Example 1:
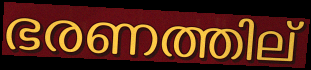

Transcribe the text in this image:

ഭരണത്തില്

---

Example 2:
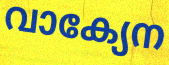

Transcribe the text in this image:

വാക്യേന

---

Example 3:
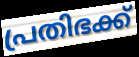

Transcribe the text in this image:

പ്രതിഭക്ക്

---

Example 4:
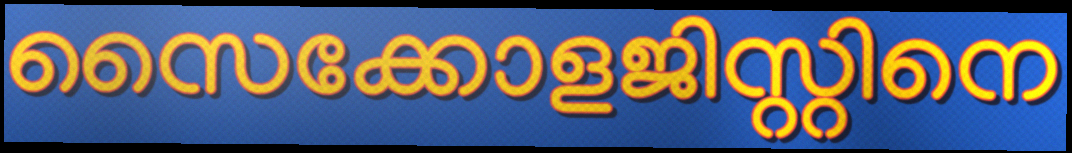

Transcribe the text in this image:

സൈക്കോളജിസ്റ്റിനെ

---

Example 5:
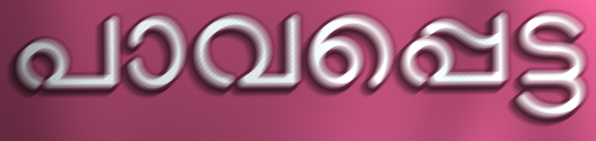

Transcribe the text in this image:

പാവപ്പെട്ട